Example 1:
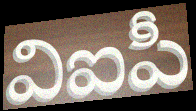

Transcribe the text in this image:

విఐపీ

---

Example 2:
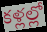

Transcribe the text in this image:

కళ్లల్లో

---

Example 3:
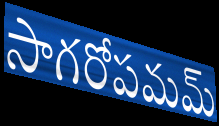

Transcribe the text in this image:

సాగరోపమమ్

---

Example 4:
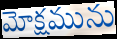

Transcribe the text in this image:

మోక్షమును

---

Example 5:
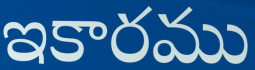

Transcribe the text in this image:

ఇకారము